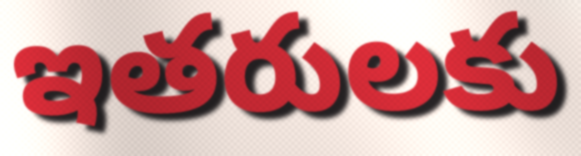
ఇతరులకు